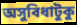
অসুবিধাটুকু